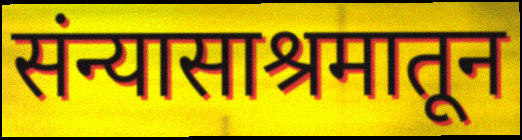
संन्यासाश्रमातून